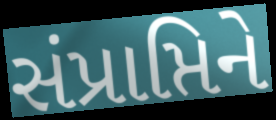
સંપ્રાપ્તિને